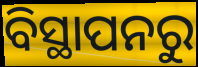
ବିସ୍ଥାପନରୁ